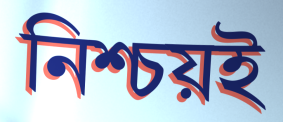
নিশ্চয়ই